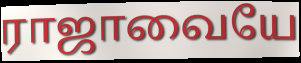
ராஜாவையே